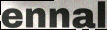
ennal